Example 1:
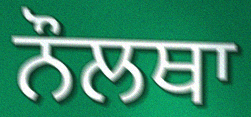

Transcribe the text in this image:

ਨੌਲਥਾ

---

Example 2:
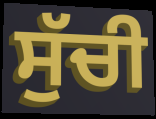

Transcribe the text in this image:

ਸੁੱਚੀ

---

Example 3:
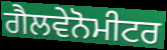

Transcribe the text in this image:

ਗੈਲਵੇਨੋਮੀਟਰ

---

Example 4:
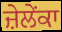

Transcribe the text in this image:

ਜ਼ੇਲੇਂਕਾ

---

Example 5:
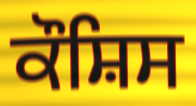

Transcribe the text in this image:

ਕੌਸ਼ਿਸ